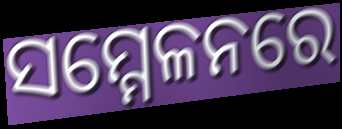
ସମ୍ମେଳନରେ